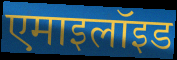
एमाइलॉइड